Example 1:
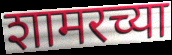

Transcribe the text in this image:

शामरच्या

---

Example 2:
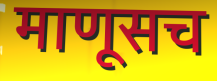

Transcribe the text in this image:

माणूसच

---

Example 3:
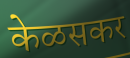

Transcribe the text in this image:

केळसकर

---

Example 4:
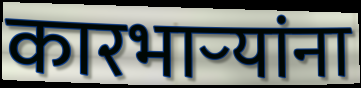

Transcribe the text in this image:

कारभाऱ्यांना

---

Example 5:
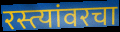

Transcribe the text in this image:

रस्त्यांवरचा